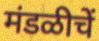
मंडळीचें